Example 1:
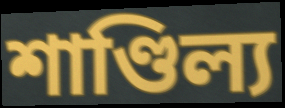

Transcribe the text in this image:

শাণ্ডিল্য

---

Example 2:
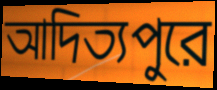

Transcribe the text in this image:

আদিত্যপুরে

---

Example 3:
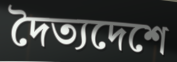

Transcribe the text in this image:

দৈত্যদেশে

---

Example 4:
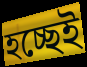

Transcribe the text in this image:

হচ্ছেই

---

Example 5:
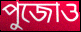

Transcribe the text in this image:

পুজোও